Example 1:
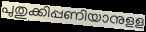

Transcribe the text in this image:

പുതുക്കിപ്പണിയാനുളള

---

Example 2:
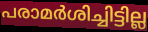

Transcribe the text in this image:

പരാമർശിച്ചിട്ടില്ല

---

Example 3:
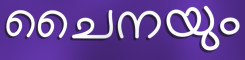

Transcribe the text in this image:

ചൈനയും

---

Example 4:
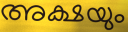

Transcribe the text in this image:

അക്ഷയും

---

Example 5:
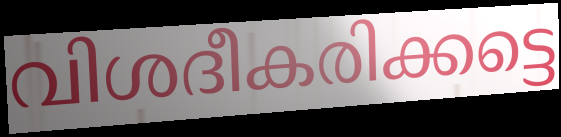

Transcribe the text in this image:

വിശദീകരിക്കട്ടെ